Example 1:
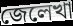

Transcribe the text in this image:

জেলেখা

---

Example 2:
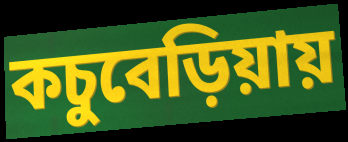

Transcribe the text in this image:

কচুবেড়িয়ায়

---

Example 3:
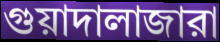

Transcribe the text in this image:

গুয়াদালাজারা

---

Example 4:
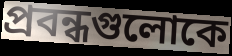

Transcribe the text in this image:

প্রবন্ধগুলোকে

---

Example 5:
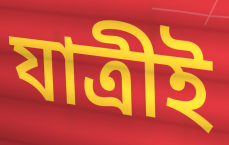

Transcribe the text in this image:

যাত্রীই